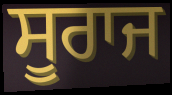
ਸੂਰਾਜ